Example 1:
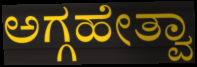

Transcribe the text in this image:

ಅಗ್ಗಹೇತ್ವಾ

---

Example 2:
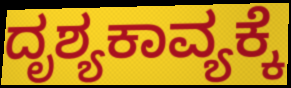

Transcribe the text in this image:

ದೃಶ್ಯಕಾವ್ಯಕ್ಕೆ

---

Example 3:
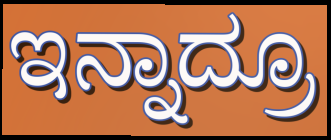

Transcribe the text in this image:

ಇನ್ನಾದ್ರೂ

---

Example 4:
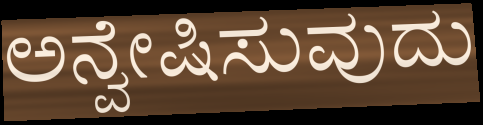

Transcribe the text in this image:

ಅನ್ವೇಷಿಸುವುದು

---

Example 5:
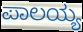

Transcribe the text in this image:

ಪಾಲಯ್ಯ